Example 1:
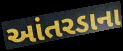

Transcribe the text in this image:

આંતરડાના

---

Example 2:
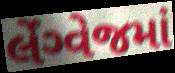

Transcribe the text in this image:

લેંગ્વેજમાં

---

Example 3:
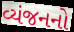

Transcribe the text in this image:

વ્યંજનનો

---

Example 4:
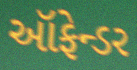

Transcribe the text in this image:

ઑફેન્ડર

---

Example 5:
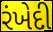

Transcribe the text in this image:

રંખેદી